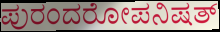
ಪುರಂದರೋಪನಿಷತ್